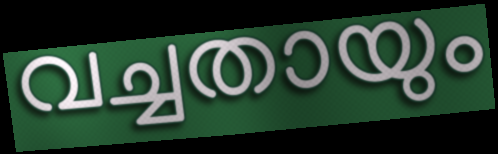
വച്ചതായും